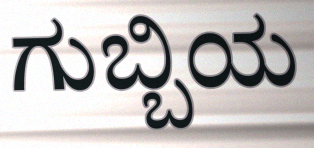
ಗುಬ್ಬಿಯ